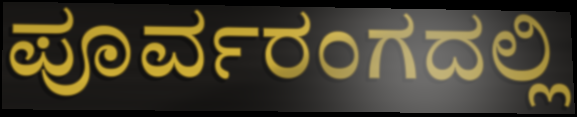
ಪೂರ್ವರಂಗದಲ್ಲಿ